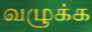
வழுக்க